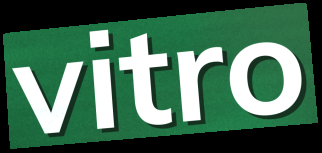
vitro